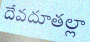
దేవదూతల్లా